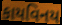
કાયવિનય